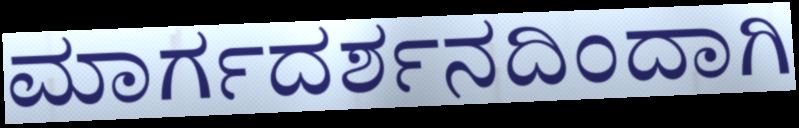
ಮಾರ್ಗದರ್ಶನದಿಂದಾಗಿ